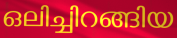
ഒലിച്ചിറങ്ങിയ